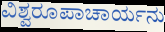
ವಿಶ್ವರೂಪಾಚಾರ್ಯನು